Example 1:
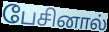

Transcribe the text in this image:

பேசினால்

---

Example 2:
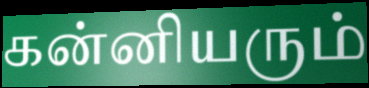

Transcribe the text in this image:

கன்னியரும்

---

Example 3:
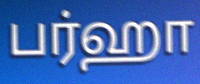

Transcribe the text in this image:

பர்ஹா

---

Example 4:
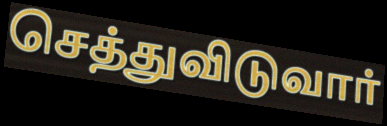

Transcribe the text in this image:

செத்துவிடுவார்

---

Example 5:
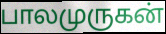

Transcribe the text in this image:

பாலமுருகன்